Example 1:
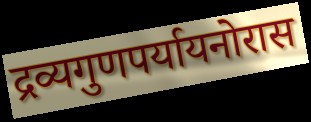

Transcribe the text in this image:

द्रव्यगुणपर्यायनोरास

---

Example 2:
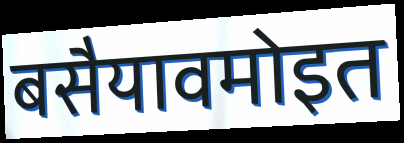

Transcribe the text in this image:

बसैयावमोइत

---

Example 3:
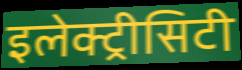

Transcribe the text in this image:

इलेक्ट्रीसिटी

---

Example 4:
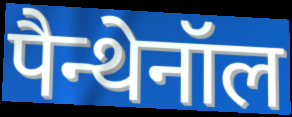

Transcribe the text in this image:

पैन्थेनॉल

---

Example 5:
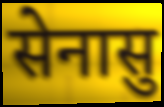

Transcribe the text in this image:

सेनासु